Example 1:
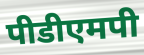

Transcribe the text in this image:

पीडीएमपी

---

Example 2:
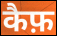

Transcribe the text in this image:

कैफ़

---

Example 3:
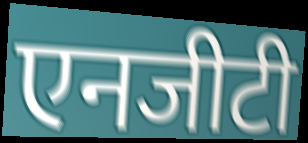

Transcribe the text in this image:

एनजीटी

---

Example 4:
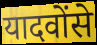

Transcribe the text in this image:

यादवोंसे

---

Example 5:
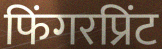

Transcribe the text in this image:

फिंगरप्रिंट